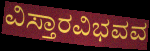
ವಿಸ್ತಾರವಿಭವವ